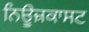
ਨਿਊਜ਼ਕਾਸਟ